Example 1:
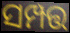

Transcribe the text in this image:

ସମ୍ପତ୍ତ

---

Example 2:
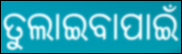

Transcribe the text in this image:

ତୁଲାଇବାପାଇଁ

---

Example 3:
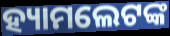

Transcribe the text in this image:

ହ୍ୟାମଲେଟଙ୍କ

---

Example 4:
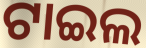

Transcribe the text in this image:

ଟାଇଲ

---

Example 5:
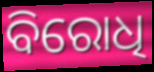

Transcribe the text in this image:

ବିରୋଧି